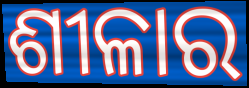
ଶୀଳାର